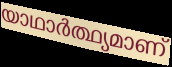
യാഥാർത്ഥ്യമാണ്